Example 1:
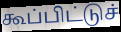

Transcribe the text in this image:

கூப்பிட்டுச்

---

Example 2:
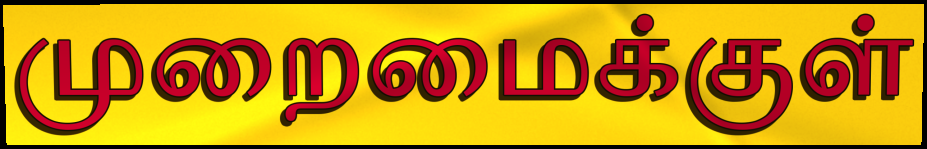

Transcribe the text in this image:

முறைமைக்குள்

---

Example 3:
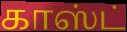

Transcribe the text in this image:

காஸ்ட்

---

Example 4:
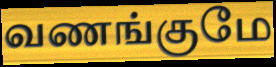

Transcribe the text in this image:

வணங்குமே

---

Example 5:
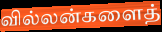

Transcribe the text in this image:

வில்லன்களைத்